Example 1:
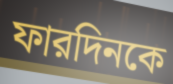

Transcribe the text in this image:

ফারদিনকে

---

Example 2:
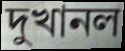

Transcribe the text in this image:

দুখানল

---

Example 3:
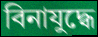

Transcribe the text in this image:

বিনাযুদ্ধে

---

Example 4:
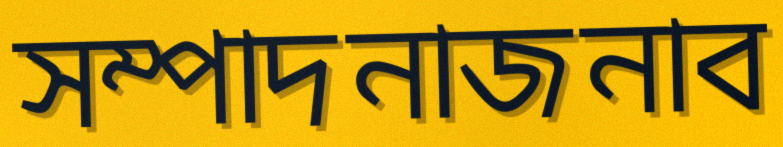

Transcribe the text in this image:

সম্পাদনাজনাব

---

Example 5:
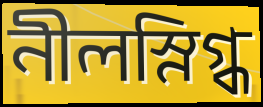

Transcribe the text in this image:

নীলস্নিগ্ধ